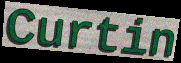
Curtin